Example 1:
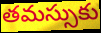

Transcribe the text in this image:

తమస్సుకు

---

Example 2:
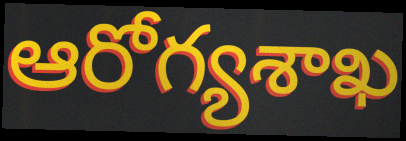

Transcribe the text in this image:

ఆరోగ్యశాఖ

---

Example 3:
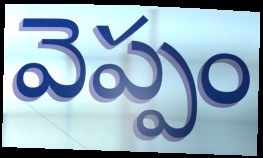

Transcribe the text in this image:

వెప్పం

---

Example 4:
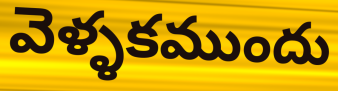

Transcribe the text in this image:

వెళ్ళకముందు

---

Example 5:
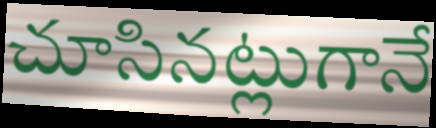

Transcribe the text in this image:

చూసినట్లుగానే